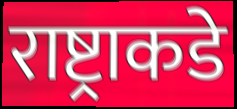
राष्ट्राकडे